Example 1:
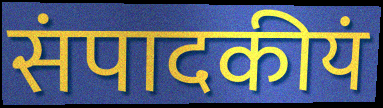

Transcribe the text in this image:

संपादकीयं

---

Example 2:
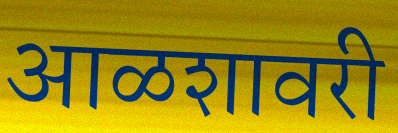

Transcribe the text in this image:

आळशावरी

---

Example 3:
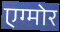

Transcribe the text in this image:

एग्मोर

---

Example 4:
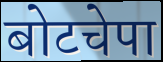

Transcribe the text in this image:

बोटचेपा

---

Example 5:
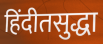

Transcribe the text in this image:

हिंदीतसुद्धा